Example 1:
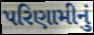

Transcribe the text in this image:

પરિણામીનું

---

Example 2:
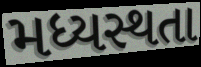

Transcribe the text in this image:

મધ્યસ્થતા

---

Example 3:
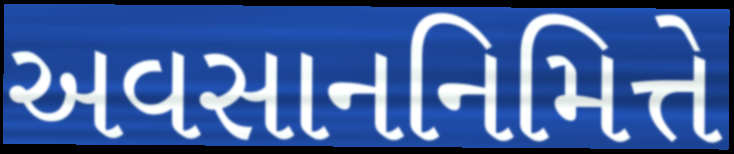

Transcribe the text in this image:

અવસાનનિમિત્તે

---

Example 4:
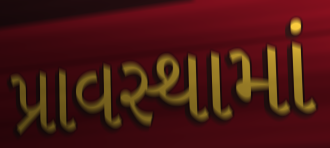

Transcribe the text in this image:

પ્રાવસ્થામાં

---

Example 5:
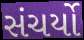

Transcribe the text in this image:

સંચર્યો